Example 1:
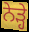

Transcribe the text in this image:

ਨੇੜ੍ਹੇ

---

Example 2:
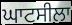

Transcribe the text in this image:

ਘਾਟਸੀਲਾ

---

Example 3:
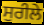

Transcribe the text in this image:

ਸੁਰੀਲੇ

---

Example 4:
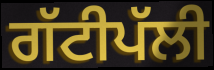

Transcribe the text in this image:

ਗੱਟੀਪੱਲੀ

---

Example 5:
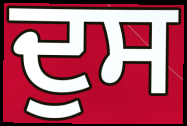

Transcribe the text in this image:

ਦੁਸ